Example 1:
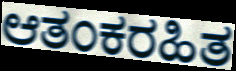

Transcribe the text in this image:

ಆತಂಕರಹಿತ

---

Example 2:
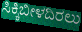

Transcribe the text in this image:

ಸಿಕ್ಕಿಬೀಳದಿರಲು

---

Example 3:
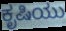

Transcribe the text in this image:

ಕೃಷಿಯು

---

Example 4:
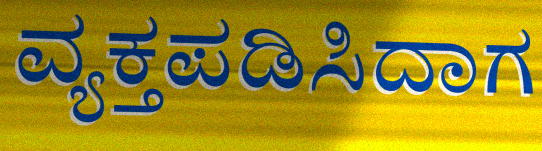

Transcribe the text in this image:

ವ್ಯಕ್ತಪಡಿಸಿದಾಗ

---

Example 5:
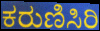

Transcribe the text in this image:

ಕರುಣಿಸಿರಿ